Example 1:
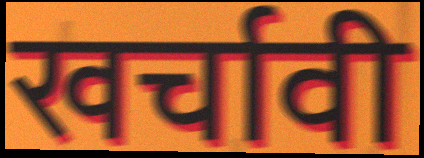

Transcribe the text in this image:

खर्चावी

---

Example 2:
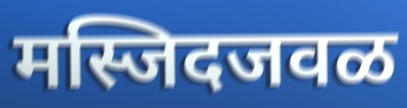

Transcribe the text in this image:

मस्जिदजवळ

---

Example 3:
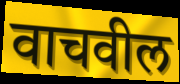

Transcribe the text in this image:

वाचवील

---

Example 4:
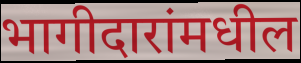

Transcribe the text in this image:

भागीदारांमधील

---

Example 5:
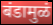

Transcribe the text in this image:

बंडामुळं